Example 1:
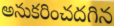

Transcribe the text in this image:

అనుకరించదగిన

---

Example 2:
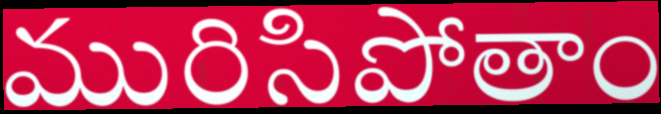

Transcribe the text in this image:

మురిసిపోతాం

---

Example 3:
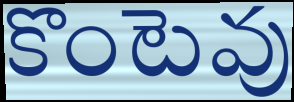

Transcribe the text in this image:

కొంటెవు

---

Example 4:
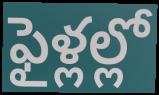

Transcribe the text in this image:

ఫైళ్లల్లో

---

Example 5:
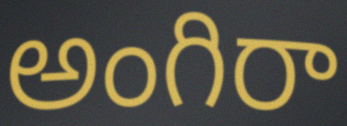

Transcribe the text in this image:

అంగిరా